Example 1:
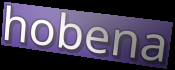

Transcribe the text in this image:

hobena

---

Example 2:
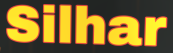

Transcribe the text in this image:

Silhar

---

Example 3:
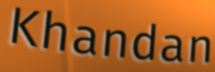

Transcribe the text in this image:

Khandan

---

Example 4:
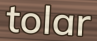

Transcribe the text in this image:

tolar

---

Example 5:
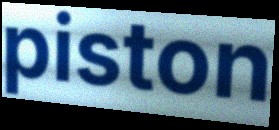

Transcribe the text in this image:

piston